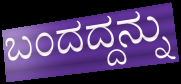
ಬಂದದ್ದನ್ನು